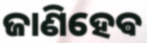
ଜାଣିହେଵ